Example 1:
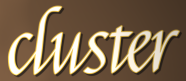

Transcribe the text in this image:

cluster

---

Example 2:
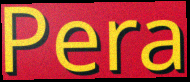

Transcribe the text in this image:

Pera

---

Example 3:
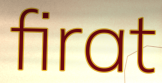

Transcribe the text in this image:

firat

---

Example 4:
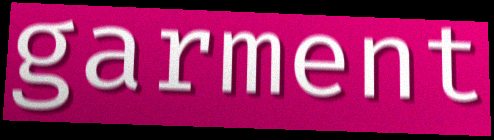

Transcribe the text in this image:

garment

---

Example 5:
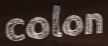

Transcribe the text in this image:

colon